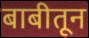
बाबीतून